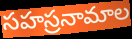
సహస్రనామాల